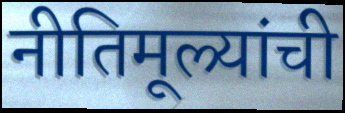
नीतिमूल्यांची